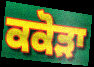
ਕਕੋੜਾ